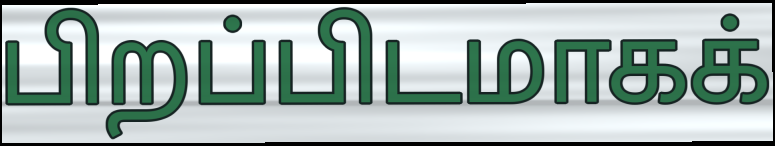
பிறப்பிடமாகக்